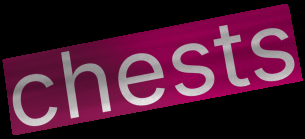
chests